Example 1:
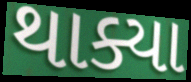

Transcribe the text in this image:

થાક્યા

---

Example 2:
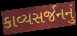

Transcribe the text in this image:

કાવ્યસર્જનનું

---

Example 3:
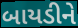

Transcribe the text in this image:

બાયડીને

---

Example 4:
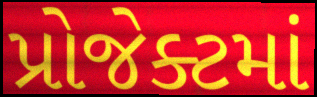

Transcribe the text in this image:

પ્રોજેક્ટમાં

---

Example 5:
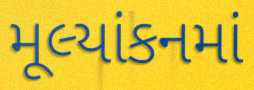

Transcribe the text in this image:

મૂલ્યાંકનમાં